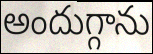
అందుగ్గాను